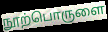
நூற்பொருளை